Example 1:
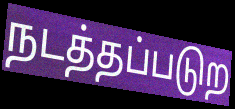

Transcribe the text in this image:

நடத்தப்படுற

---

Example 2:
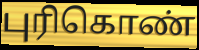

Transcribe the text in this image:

புரிகொண்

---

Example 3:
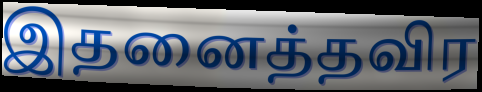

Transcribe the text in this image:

இதனைத்தவிர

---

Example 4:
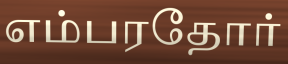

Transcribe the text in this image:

எம்பரதோர்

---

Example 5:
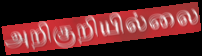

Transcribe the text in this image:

அறிகுறியில்லை